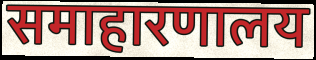
समाहारणालय